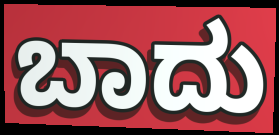
ಬಾದು